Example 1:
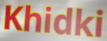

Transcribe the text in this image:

Khidki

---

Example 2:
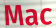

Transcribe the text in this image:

Mac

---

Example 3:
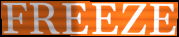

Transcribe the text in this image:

FREEZE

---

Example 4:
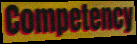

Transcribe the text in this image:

Competency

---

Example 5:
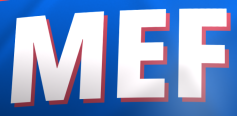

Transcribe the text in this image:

MEF